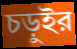
চড়ুইর